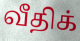
வீதிக்